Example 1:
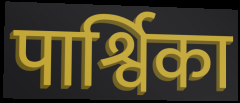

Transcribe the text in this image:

पार्श्विका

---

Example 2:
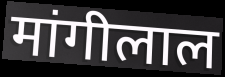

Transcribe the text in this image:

मांगीलाल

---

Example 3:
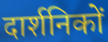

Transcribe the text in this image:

दार्शनिकों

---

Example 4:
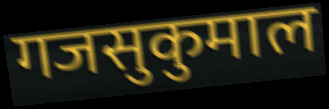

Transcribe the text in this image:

गजसुकुमाल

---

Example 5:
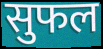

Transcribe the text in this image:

सुफल